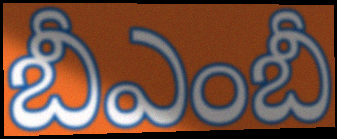
బీఎంబీ